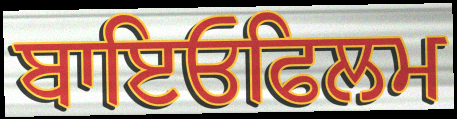
ਬਾਇਓਫਿਲਮ